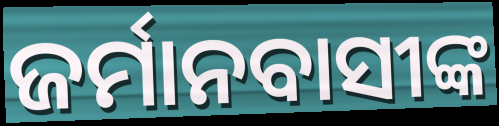
ଜର୍ମାନବାସୀଙ୍କ